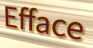
Efface